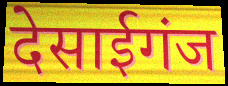
देसाईगंज